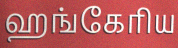
ஹங்கேரிய